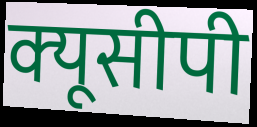
क्यूसीपी